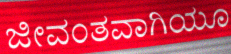
ಜೀವಂತವಾಗಿಯೂ